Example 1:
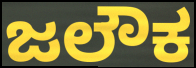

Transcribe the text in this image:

ಜಲೌಕ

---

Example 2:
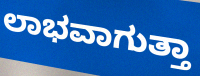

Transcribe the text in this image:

ಲಾಭವಾಗುತ್ತಾ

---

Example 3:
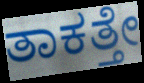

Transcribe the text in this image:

ತಾಕತ್ತೇ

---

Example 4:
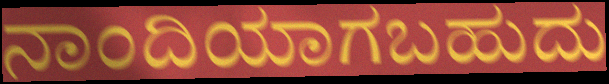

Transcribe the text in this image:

ನಾಂದಿಯಾಗಬಹುದು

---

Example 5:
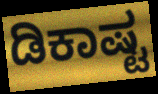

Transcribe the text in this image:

ಡಿಕಾಷ್ಟ